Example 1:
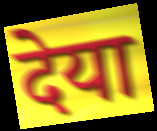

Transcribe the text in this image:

देया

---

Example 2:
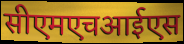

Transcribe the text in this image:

सीएमएचआईएस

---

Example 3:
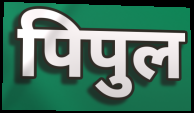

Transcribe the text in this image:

पिपुल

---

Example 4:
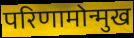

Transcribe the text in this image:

परिणामोन्मुख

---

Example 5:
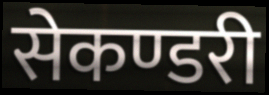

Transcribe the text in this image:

सेकण्‍डरी